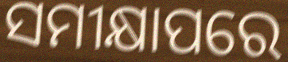
ସମୀକ୍ଷାପରେ